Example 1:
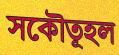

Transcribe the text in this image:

সকৌতূহল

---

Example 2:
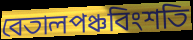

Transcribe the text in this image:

বেতালপঞ্চবিংশতি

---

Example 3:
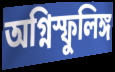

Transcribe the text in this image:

অগ্নিস্ফুলিঙ্গ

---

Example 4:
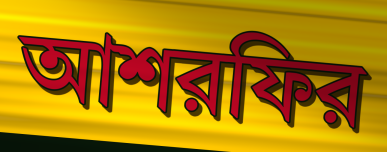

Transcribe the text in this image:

আশরফির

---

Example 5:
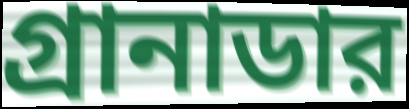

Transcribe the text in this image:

গ্রানাডার